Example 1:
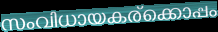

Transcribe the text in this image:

സംവിധായകര്ക്കൊപ്പം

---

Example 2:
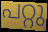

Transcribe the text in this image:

പറ്റു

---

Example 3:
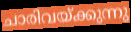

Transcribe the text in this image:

ചാരിവയ്ക്കുന്നു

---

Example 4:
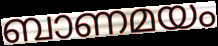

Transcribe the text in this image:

ബാണമയം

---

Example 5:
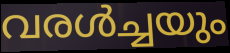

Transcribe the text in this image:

വരൾച്ചയും